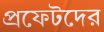
প্রফেটদের